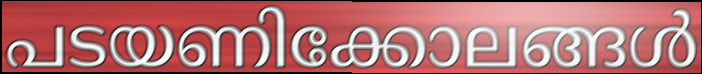
പടയണിക്കോലങ്ങൾ